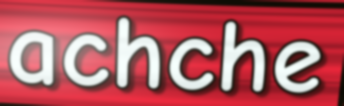
achche